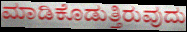
ಮಾಡಿಕೊಡುತ್ತಿರುವುದು